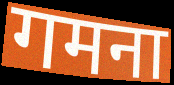
गमना